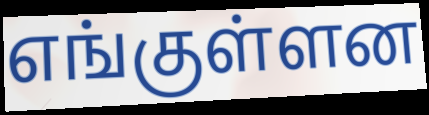
எங்குள்ளன